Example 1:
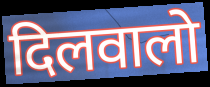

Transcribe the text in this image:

दिलवालो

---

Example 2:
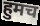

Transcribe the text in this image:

हुमच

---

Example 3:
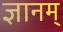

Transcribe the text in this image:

ज्ञानम्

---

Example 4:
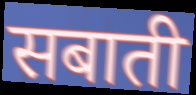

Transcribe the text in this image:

सबाती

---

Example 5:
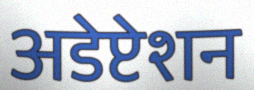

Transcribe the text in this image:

अडेप्टेशन